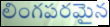
లింగపరమైన